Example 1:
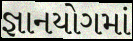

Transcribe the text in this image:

જ્ઞાનયોગમાં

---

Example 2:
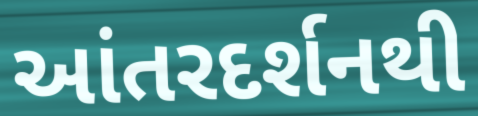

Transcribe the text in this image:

આંતરદર્શનથી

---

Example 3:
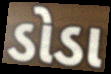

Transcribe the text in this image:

ડોડા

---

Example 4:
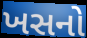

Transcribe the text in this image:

ખસનો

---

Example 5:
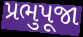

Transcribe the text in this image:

પ્રભુપૂજા